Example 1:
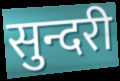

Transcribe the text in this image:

सुन्दरी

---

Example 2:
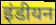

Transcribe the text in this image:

इंडीयन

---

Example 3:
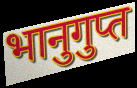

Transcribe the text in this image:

भानुगुप्त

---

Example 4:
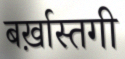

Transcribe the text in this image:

बर्ख़ास्तगी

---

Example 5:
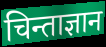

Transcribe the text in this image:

चिन्ताज्ञान